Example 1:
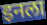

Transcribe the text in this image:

इनला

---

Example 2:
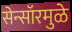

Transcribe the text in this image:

सेन्सॉरमुळे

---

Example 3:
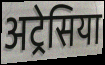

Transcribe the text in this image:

अट्रेसिया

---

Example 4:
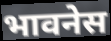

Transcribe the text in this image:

भावनेस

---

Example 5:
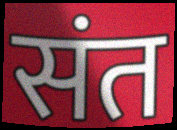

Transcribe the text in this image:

संत